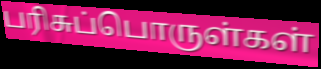
பரிசுப்பொருள்கள்